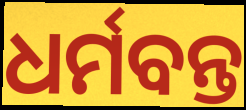
ଧର୍ମବନ୍ତ